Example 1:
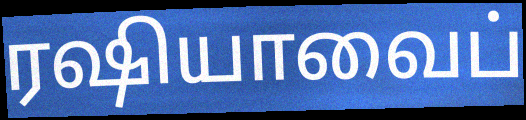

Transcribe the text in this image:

ரஷியாவைப்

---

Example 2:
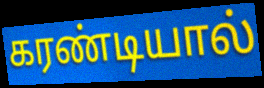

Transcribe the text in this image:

கரண்டியால்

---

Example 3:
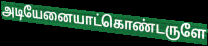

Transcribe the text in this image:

அடியேனையாட்கொண்டருளே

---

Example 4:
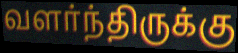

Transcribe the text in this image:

வளர்ந்திருக்கு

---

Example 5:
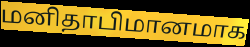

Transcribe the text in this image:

மனிதாபிமானமாக